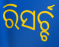
ରିସର୍ଚ୍ଚ